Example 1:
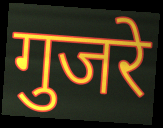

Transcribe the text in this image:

गुजरे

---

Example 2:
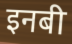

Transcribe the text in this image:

इनबी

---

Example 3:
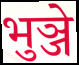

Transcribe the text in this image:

भुञ्जे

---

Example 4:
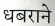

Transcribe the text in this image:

धबराने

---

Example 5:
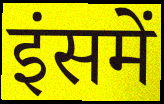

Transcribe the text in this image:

इंसमें